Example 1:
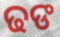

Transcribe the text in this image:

ଢଙ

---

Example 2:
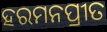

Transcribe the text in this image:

ହରମନପ୍ରୀତ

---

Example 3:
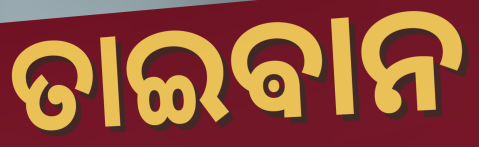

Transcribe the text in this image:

ତାଇଵାନ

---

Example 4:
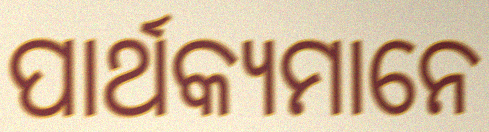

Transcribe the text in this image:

ପାର୍ଥକ୍ୟମାନେ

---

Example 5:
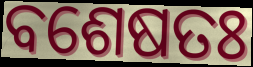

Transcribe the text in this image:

ବଶେଷତଃ